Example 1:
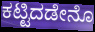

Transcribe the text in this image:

ಕಟ್ಟಿದಡೇನೊ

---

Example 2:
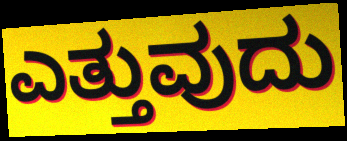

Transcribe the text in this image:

ಎತ್ತುವುದು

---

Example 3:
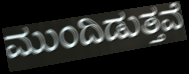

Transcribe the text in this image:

ಮುಂದಿಡುತ್ತವೆ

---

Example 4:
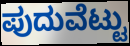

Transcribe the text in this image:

ಪುದುವೆಟ್ಟು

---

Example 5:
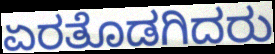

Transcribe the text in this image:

ಏರತೊಡಗಿದರು